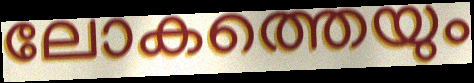
ലോകത്തെയും